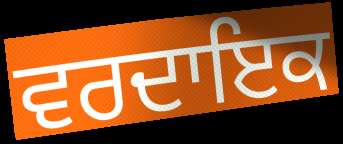
ਵਰਦਾਇਕ